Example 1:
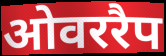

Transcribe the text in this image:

ओवररैप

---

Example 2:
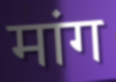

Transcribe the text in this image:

मांग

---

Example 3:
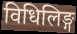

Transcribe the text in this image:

विधिलिङ्ग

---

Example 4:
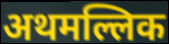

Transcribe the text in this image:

अथमल्लिक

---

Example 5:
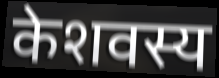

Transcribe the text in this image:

केशवस्य